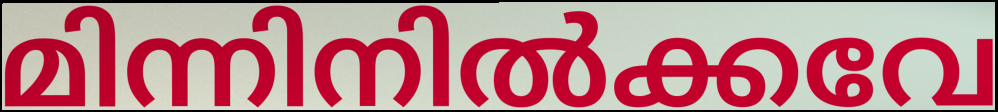
മിന്നിനിൽക്കവേ